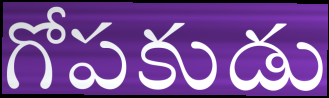
గోపకుడు